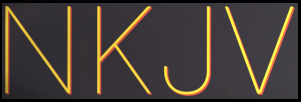
NKJV